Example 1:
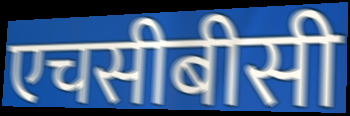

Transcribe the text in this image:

एचसीबीसी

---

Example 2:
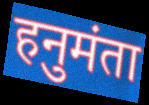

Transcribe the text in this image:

हनुमंता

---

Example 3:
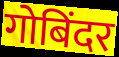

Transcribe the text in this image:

गोबिंदर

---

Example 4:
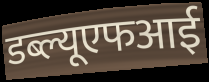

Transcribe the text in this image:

डब्ल्यूएफआई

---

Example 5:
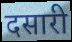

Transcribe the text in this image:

दसारी